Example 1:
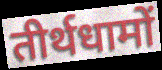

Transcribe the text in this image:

तीर्थधामों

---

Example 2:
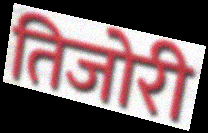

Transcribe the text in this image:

तिजोरी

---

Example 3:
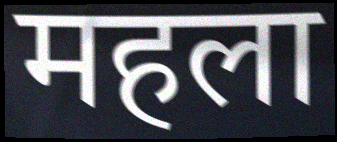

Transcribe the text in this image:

महला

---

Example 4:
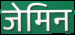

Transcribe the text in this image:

जेमिन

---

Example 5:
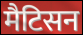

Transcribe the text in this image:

मैटिसन